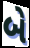
બે